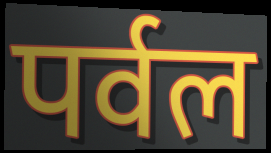
पर्वल